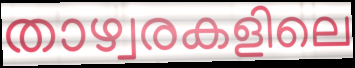
താഴ്വരകളിലെ